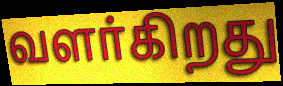
வளர்கிறது